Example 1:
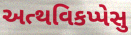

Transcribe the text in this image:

અત્થવિકપ્પેસુ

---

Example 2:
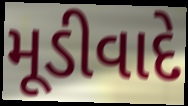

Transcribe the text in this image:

મૂડીવાદે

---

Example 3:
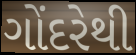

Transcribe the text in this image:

ગોંદરેથી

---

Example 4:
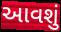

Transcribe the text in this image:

આવશું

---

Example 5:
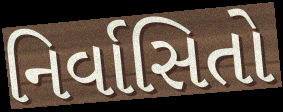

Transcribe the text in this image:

નિર્વાસિતો